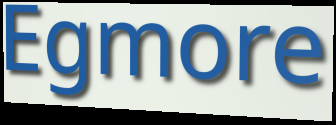
Egmore